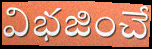
విభజించే